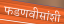
फडणवीसांशी